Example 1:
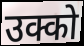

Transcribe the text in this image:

उक्को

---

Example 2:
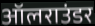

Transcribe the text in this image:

ऑलराउंडर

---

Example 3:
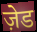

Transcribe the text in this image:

ज़ेड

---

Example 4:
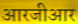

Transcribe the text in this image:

आरजीआर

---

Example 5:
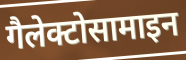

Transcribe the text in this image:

गैलेक्टोसामाइन